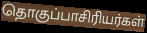
தொகுப்பாசிரியர்கள்